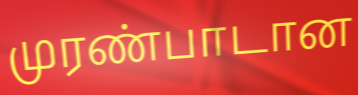
முரண்பாடான